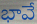
భావే